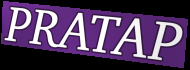
PRATAP